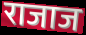
राजाज